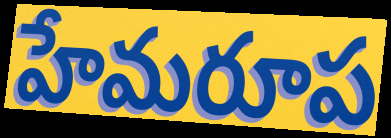
హేమరూప